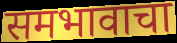
समभावाचा